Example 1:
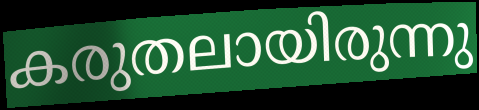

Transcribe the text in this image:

കരുതലായിരുന്നു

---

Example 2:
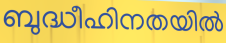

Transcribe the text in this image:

ബുദ്ധീഹിനതയിൽ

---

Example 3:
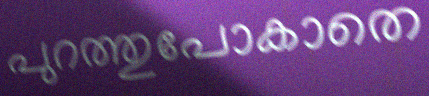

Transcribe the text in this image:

പുറത്തുപോകാതെ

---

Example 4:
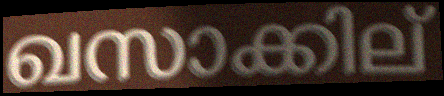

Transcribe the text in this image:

ഖസാക്കില്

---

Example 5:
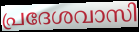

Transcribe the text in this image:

പ്രദേശവാസി